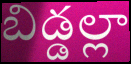
బిడ్డల్లా